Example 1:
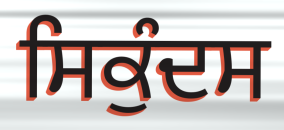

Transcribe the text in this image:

ਸਿਕੁੰਦਸ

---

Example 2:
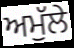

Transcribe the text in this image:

ਅਮੁੱਲੇ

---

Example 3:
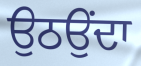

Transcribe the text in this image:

ਉਠਉਂਦਾ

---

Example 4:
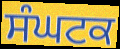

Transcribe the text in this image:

ਸੰਘਟਕ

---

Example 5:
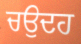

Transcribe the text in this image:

ਚਉਦਹ